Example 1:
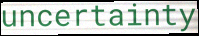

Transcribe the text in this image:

uncertainty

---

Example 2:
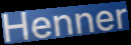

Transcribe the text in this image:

Henner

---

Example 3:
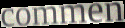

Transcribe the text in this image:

commen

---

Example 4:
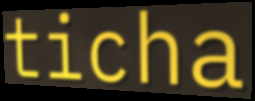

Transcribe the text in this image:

ticha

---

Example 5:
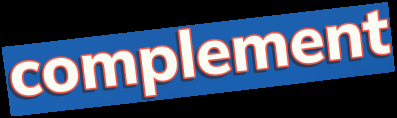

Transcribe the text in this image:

complement